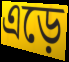
এড়ে